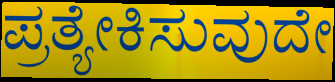
ಪ್ರತ್ಯೇಕಿಸುವುದೇ